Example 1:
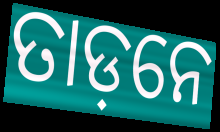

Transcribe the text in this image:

ତାଡ଼ନେ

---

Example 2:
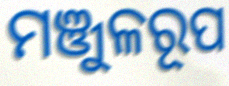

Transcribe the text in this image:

ମଞ୍ଜୁଳରୂପ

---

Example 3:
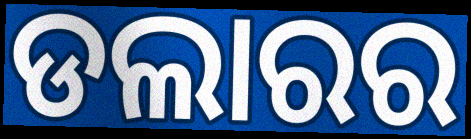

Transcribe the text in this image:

ଡଲାରର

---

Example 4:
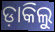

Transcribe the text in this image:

ଡ଼ାକିଲୁ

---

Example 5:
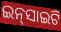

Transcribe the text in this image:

ଇନ୍‌ସାଇଟି